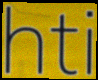
hti